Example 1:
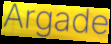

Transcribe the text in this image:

Argade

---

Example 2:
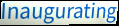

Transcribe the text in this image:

Inaugurating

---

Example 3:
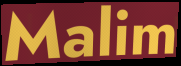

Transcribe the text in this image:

Malim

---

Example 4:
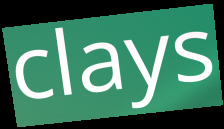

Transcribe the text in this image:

clays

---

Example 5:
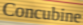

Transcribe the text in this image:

Concubine